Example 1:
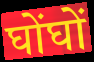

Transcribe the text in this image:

घोंघों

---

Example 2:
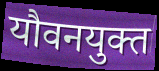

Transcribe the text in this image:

यौवनयुक्त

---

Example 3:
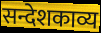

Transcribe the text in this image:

सन्देशकाव्य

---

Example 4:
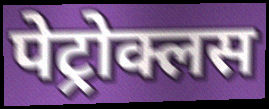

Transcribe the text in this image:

पेट्रोक्लस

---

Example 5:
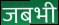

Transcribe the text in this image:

जबभी